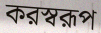
করস্বরূপ